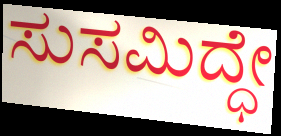
ಸುಸಮಿದ್ಧೇ